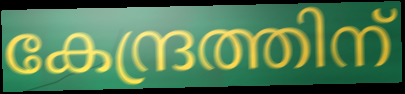
കേന്ദ്രത്തിന്